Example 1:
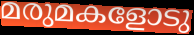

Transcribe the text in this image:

മരുമകളോടു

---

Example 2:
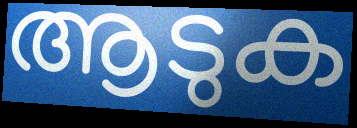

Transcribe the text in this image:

ആടുക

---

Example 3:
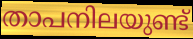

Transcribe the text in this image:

താപനിലയുണ്ട്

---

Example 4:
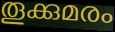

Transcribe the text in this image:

തൂക്കുമരം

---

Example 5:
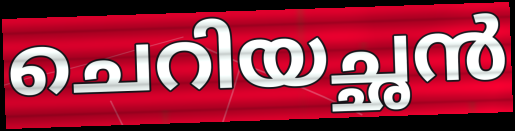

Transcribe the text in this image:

ചെറിയച്ഛൻ